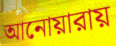
আনোয়ারায়